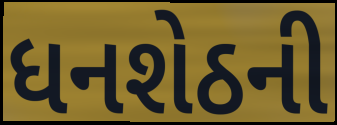
ધનશેઠની